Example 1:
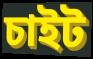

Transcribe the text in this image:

চাইট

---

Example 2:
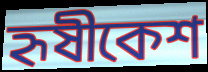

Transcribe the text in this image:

হৃষীকেশ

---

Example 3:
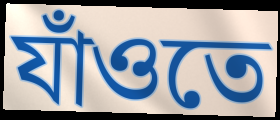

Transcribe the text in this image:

যাঁওতে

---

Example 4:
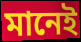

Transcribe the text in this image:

মানেই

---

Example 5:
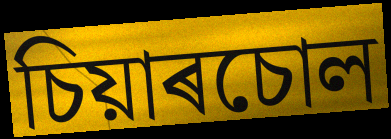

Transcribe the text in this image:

চিয়াৰচোল